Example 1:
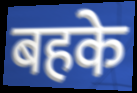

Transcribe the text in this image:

बहके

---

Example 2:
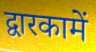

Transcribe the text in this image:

द्वारकामें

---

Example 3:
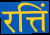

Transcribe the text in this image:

रत्तिं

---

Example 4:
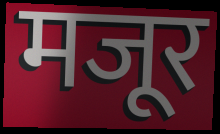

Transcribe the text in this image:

मजूर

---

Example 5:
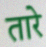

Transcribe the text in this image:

तारे